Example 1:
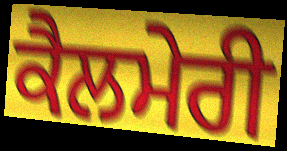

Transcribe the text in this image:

ਕੈਲਮੇਰੀ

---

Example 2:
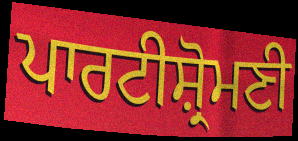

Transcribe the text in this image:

ਪਾਰਟੀਸ਼੍ਰੋਮਣੀ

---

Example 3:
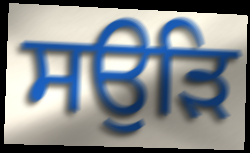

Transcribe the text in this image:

ਸਉੜਿ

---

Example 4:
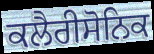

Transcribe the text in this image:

ਕਲੈਰੀਸੋਨਿਕ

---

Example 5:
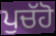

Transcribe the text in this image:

ਪੁਚੱਹੋ